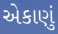
એકાણું